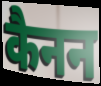
कैनन